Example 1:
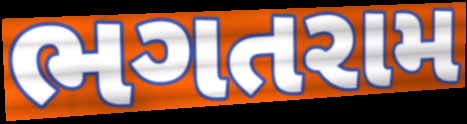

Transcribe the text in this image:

ભગતરામ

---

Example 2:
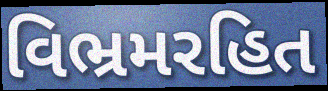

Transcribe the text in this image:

વિભ્રમરહિત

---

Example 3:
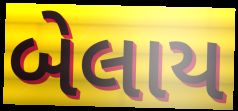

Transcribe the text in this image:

બેલાય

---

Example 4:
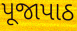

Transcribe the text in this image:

પૂજાપાઠ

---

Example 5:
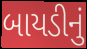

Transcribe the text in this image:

બાયડીનું